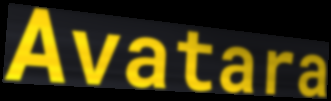
Avatara